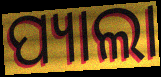
ପ୍ୟାଲା